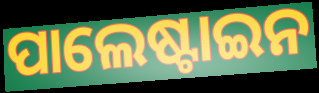
ପାଲେଷ୍ଟାଇନ